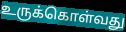
உருக்கொள்வது